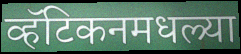
व्हॅटिकनमधल्या